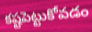
కష్టపెట్టుకోవడం